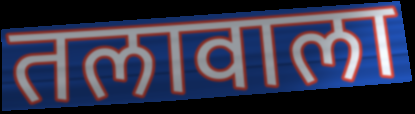
तलावाला